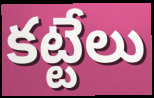
కట్టేలు